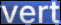
vert